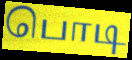
பொடி